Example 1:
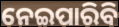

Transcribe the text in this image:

ନେଇପାରିବି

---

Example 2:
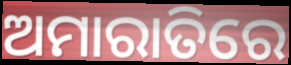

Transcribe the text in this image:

ଅମାରାତିରେ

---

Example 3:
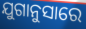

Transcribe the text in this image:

ଯୁଗାନୁସାରେ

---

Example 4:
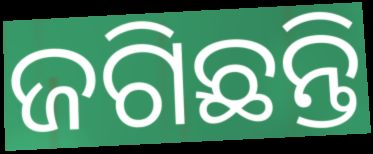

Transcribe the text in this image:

ଜଗିଛନ୍ତି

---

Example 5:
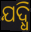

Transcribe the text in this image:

ଯଦ୍ଧି